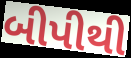
બીપીથી